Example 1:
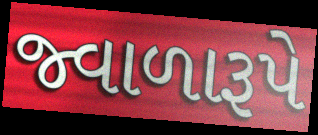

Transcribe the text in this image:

જ્વાળારૂપે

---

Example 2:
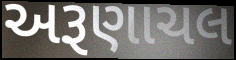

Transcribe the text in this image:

અરૂણાચલ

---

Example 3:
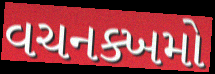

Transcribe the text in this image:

વચનક્ખમો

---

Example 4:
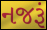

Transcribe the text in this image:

નજરૂં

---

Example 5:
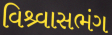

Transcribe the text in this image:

વિશ્ર્વાસભંગ